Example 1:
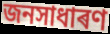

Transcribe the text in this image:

জনসাধাৰণ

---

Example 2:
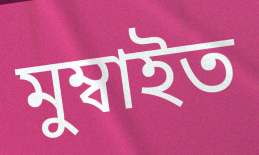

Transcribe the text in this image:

মুম্বাইত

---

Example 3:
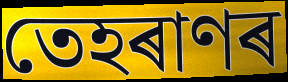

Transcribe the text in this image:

তেহৰাণৰ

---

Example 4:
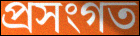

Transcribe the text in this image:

প্ৰসংগত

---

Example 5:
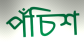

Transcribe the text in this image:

পঁচিশ